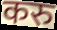
करु